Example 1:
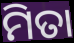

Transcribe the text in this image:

ମିତା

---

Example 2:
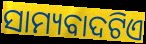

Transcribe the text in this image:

ସାମ୍ୟବାଦଟିଏ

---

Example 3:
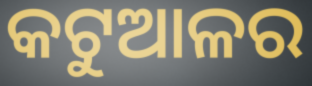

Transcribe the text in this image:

କଟୁଆଳର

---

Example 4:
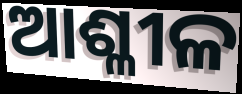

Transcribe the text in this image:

ଆଶ୍ଳୀଳ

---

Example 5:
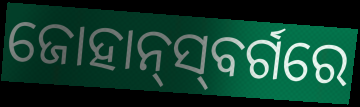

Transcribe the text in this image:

ଜୋହାନ୍‌ସ୍‌ବର୍ଗରେ